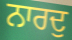
ਨਾਰਦੁ